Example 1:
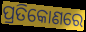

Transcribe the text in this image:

ପ୍ରତିକୋଣରେ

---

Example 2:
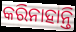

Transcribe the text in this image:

କରିନାହାନ୍ତି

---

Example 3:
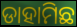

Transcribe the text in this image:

ଡାହାମିଛ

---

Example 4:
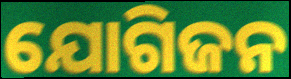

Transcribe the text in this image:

ଯୋଗିଜନ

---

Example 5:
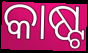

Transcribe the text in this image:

କାଷ୍ଟ